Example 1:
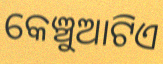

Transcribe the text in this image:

କେଞ୍ଚୁଆଟିଏ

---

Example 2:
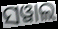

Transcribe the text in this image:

ସୱାଲ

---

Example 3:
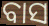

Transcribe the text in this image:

ବାସ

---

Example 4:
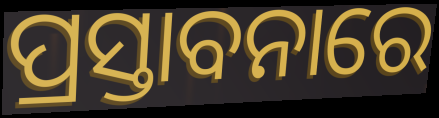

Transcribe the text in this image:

ପ୍ରସ୍ତାବନାରେ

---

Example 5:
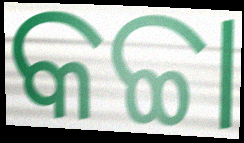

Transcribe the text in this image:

କଚ୍ଚା